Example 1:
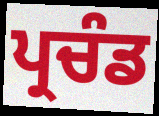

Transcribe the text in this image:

ਪ੍ਰਚੰਡ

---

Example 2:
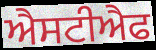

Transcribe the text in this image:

ਐਸਟੀਐਫ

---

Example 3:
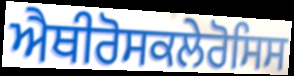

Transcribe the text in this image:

ਐਥੀਰੋਸਕਲੇਰੋਸਿਸ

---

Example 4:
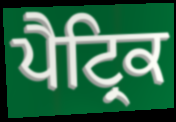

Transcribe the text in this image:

ਪੈਟ੍ਰਿਕ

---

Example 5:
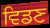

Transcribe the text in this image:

ਵਿਡਣ